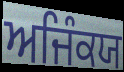
ਅਜਿੰਕਯ